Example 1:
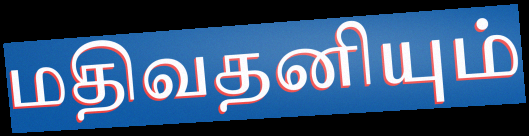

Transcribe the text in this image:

மதிவதனியும்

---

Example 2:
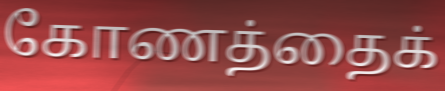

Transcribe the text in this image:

கோணத்தைக்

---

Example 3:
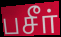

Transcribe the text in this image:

பசீர்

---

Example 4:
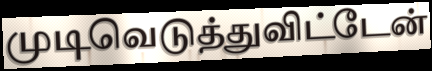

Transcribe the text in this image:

முடிவெடுத்துவிட்டேன்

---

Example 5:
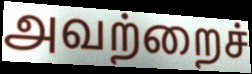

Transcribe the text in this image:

அவற்றைச்